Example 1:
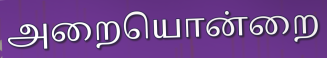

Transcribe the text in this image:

அறையொன்றை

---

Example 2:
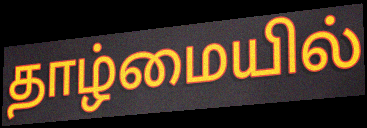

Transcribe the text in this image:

தாழ்மையில்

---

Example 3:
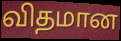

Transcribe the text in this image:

விதமான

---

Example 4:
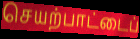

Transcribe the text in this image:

செயற்பாட்டைப்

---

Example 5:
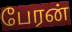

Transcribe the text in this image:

பேரன்